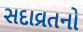
સદાવ્રતનો